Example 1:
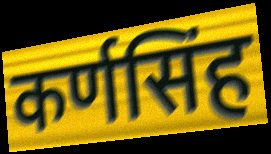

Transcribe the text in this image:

कर्णसिंह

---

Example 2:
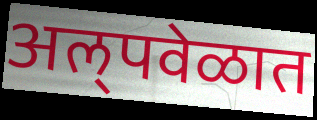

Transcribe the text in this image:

अल्पवेळात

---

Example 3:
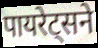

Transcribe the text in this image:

पायरेट्सने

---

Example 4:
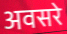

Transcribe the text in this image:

अवसरे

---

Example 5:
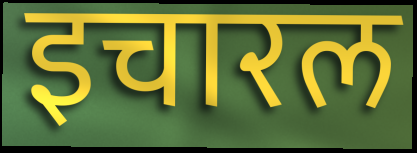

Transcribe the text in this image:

इचारल